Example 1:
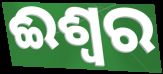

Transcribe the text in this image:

ଈଶ୍ୱର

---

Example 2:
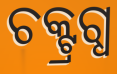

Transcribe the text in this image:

ଚକ୍ଟ୍ରଗ୍ଧ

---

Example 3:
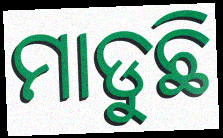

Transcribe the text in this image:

ମାଡୁଛି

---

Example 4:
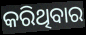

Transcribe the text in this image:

କରିଥିବାର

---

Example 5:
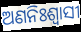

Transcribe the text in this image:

ଅଣନିଃଶ୍ଵାସୀ